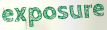
exposure